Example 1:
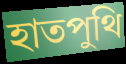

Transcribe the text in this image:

হাতপুথি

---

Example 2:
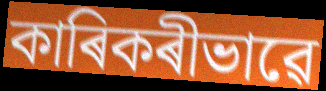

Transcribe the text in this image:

কাৰিকৰীভাৱে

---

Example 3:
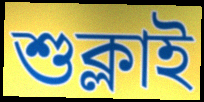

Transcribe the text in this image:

শুক্লাই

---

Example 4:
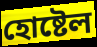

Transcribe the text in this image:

হোষ্টেল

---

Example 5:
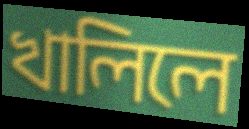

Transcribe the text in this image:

খালিলে